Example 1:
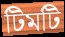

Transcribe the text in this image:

টিমটি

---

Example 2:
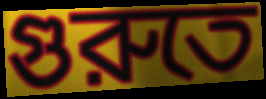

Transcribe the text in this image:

গুরুতে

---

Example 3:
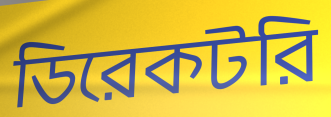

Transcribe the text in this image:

ডিরেকটরি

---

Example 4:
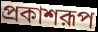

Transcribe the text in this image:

প্রকাশরূপ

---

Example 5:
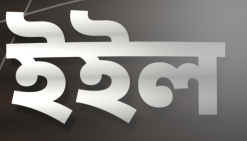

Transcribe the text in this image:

ইইল